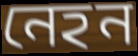
নেহন